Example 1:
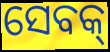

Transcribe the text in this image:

ସେବକ୍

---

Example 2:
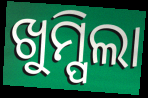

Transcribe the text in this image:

ଖୁମ୍ପିଲା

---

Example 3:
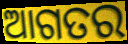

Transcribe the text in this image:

ଆଗତର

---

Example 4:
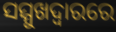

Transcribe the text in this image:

ସମ୍ମୁଖଦ୍ୱାରରେ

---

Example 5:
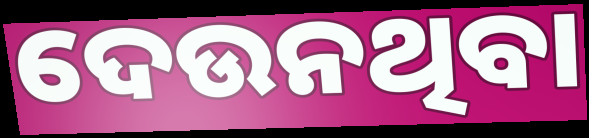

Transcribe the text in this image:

ଦେଉନଥିବା